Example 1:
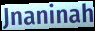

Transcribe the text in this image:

Jnaninah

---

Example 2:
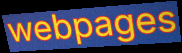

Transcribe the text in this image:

webpages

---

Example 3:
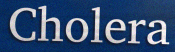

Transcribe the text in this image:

Cholera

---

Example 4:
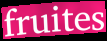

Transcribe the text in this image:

fruites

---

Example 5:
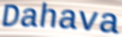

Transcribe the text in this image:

Dahava